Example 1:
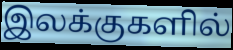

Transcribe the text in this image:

இலக்குகளில்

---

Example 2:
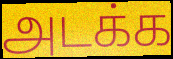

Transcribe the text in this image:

அடக்க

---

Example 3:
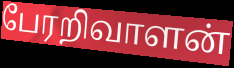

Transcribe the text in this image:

பேரறிவாளன்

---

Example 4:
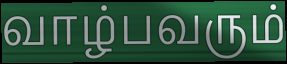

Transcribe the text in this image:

வாழ்பவரும்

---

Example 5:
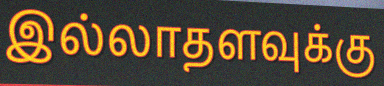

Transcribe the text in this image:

இல்லாதளவுக்கு